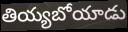
తియ్యబోయాడు